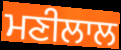
ਮਣੀਲਾਲ